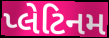
પ્લેટિનમ